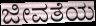
ಜೀವತೆಯ